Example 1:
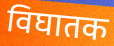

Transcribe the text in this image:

विघातक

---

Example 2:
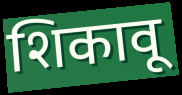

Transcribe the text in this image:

शिकावू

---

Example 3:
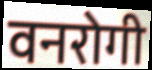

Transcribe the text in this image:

वनरोगी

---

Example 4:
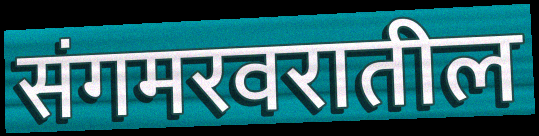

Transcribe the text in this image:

संगमरवरातील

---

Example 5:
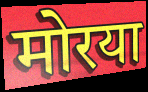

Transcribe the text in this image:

मोरया